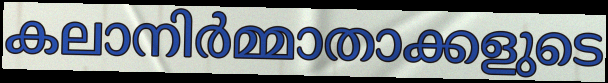
കലാനിർമ്മാതാക്കളുടെ